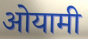
ओयामी